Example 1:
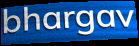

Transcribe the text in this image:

bhargav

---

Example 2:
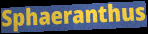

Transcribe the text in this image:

Sphaeranthus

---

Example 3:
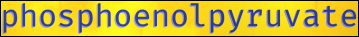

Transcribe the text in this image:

phosphoenolpyruvate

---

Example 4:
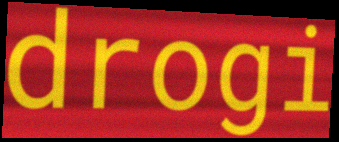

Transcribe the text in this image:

drogi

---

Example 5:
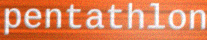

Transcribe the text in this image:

pentathlon